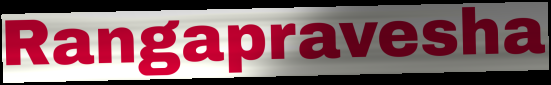
Rangapravesha